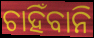
ଚାହିଁବାନି